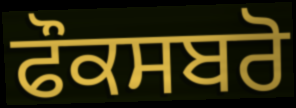
ਫੌਕਸਬਰੋ